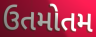
ઉતમોતમ